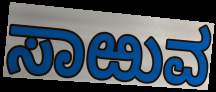
ಸಾಱುವ